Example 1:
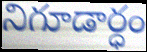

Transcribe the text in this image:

నిగూడార్ధం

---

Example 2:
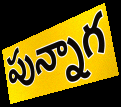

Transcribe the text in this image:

పున్నాగ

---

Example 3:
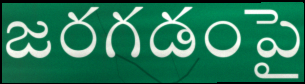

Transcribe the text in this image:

జరగడంపై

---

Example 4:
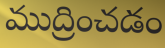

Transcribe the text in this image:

ముద్రించడం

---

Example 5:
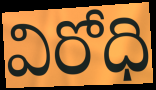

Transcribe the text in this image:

విరోధి